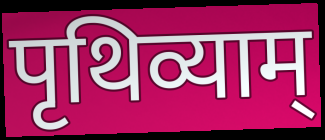
पृथिव्याम्